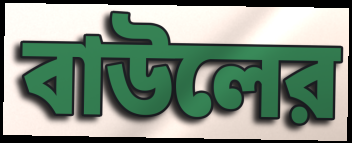
বাউলের